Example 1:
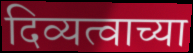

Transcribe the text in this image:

दिव्यत्वाच्या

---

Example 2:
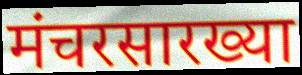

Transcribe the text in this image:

मंचरसारख्या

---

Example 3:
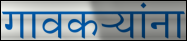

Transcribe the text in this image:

गावकऱ्यांना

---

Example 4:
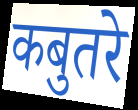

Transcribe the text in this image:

कबुतरे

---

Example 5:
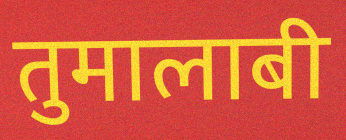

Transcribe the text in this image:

तुमालाबी